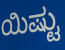
ಯಿಷ್ಟು